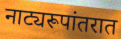
नाट्यरूपांतरात